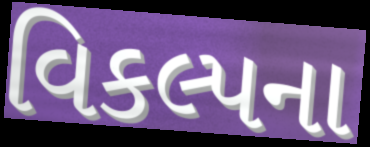
વિકલ્પના